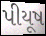
પીયૂષ